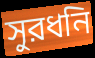
সুরধনি